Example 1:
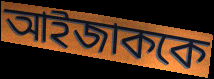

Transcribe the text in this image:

আইজাককে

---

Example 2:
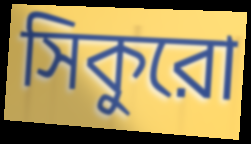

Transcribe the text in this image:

সিকুরো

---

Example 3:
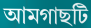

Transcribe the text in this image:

আমগাছটি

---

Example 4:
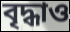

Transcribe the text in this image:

বৃদ্ধাও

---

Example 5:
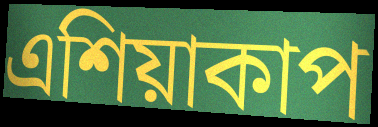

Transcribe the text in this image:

এশিয়াকাপ